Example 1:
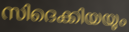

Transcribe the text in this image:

സിദെക്കിയയും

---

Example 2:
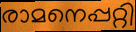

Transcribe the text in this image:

രാമനെപ്പറ്റി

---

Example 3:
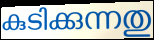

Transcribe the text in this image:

കുടിക്കുന്നതു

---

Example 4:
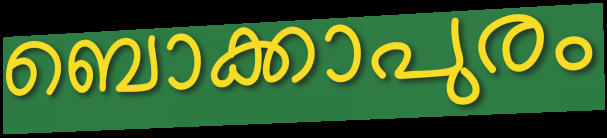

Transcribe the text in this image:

ബൊക്കാപുരം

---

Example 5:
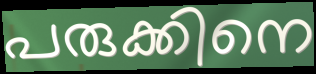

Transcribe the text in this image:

പരുക്കിനെ